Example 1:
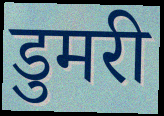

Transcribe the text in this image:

डुमरी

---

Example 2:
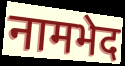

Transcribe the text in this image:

नामभेद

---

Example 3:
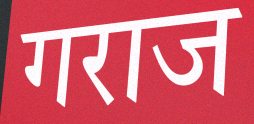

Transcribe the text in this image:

गराज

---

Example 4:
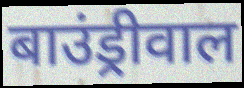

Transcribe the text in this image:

बाउंड्रीवाल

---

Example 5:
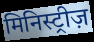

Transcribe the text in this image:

मिनिस्ट्रीज़